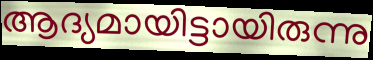
ആദ്യമായിട്ടായിരുന്നു